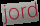
jord